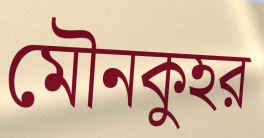
মৌনকুহর